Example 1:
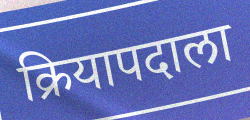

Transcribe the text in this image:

क्रियापदाला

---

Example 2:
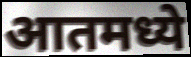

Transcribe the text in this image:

आतमध्ये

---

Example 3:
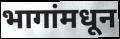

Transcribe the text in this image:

भागांमधून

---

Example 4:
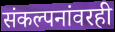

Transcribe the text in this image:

संकल्पनांवरही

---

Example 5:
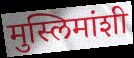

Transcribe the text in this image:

मुस्लिमांशी